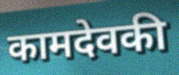
कामदेवकी